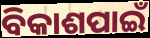
ବିକାଶପାଇଁ